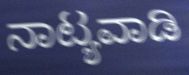
ನಾಟ್ಯವಾಡಿ